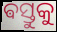
ଵସ୍ତୁକୁ